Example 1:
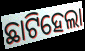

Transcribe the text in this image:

ଛାଟିହେଲା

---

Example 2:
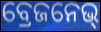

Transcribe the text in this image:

ବ୍ରେଜନେଭ୍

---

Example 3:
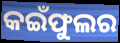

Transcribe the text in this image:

କଇଁଫୁଲର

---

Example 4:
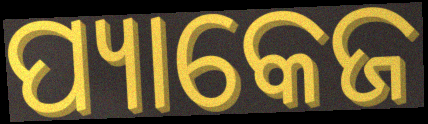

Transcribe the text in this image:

ପ୍ୟାକେଜ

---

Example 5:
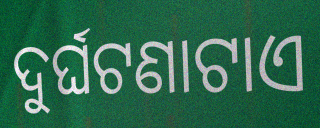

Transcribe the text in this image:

ଦୁର୍ଘଟଣାଟାଏ